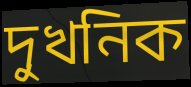
দুখনিক